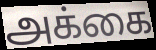
அக்கை